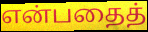
என்பதைத்